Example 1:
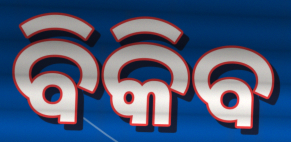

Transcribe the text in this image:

ବିକିବ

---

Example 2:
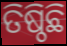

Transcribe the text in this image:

ତିଷ୍ଠିଛି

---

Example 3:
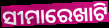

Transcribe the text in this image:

ସୀମାରେଖାଟି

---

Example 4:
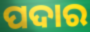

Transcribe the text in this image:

ପଦାର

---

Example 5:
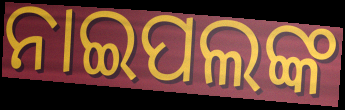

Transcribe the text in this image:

ନାଇପଲଙ୍କ